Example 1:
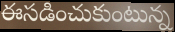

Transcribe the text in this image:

ఈసడించుకుంటున్న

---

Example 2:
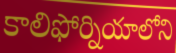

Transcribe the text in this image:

కాలిఫోర్నియాలోని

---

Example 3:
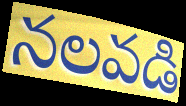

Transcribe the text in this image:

నలవడి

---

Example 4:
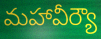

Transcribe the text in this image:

మహావీర్యౌ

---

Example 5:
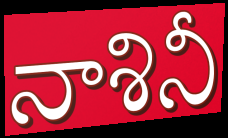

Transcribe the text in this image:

నాశినీ